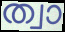
ത്വാ